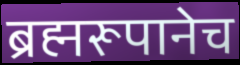
ब्रह्मरूपानेच